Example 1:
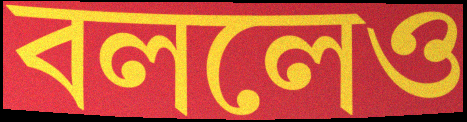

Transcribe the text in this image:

বললেও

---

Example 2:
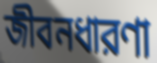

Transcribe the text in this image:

জীবনধারণা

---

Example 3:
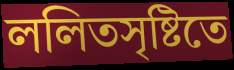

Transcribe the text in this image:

ললিতসৃষ্টিতে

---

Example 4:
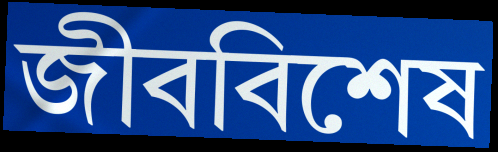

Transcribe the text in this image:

জীববিশেষ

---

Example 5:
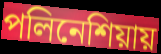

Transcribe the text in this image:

পলিনেশিয়ায়